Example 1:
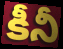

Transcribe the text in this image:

కీనీ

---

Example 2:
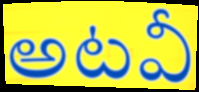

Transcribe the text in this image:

అటవీ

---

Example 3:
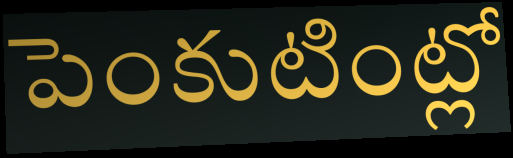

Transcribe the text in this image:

పెంకుటింట్లో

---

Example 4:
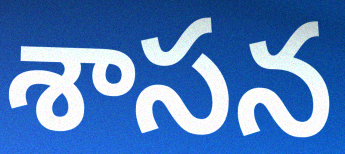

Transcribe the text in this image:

శాసన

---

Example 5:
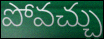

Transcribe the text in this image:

పోవచ్చు